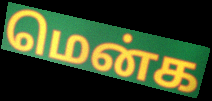
மென்க